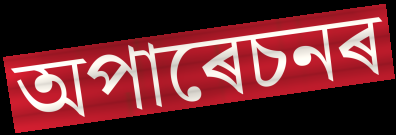
অপাৰেচনৰ